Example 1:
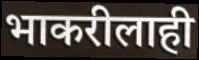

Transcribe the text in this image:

भाकरीलाही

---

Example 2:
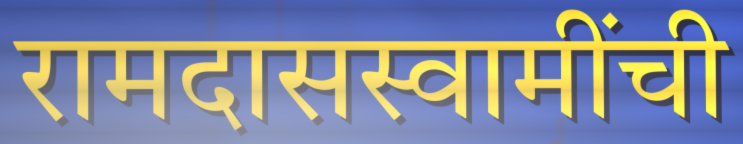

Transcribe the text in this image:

रामदासस्वामींची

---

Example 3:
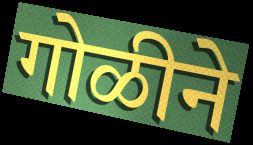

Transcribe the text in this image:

गोळीने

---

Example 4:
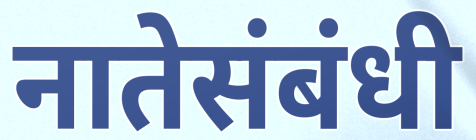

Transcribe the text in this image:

नातेसंबंधी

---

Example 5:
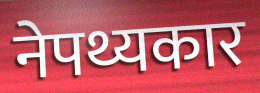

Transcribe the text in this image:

नेपथ्यकार